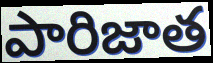
పారిజాత